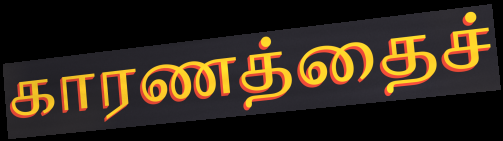
காரணத்தைச்